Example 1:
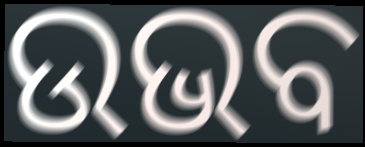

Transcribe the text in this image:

ଉଭବ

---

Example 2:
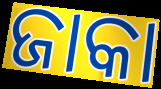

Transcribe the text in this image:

ଜାକା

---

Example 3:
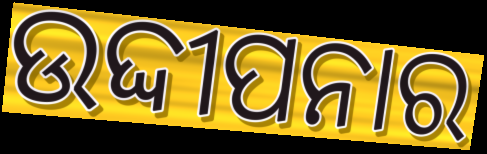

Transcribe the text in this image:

ଉଦ୍ଦୀପନାର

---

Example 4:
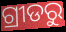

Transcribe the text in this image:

ଗ୍ରୀଡରୁ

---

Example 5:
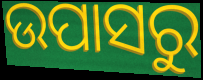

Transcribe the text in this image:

ଉପାସରୁ